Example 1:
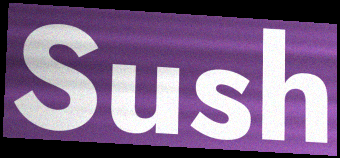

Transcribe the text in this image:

Sush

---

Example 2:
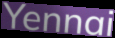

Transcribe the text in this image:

Yennai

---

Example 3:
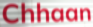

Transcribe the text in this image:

Chhaan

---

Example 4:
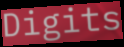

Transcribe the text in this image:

Digits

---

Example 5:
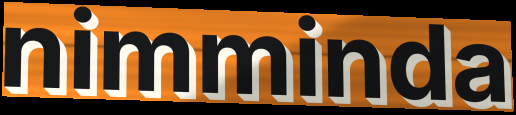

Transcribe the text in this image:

nimminda